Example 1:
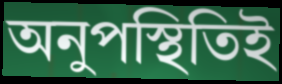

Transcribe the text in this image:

অনুপস্থিতিই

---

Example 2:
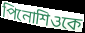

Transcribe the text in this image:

পিনোশিওকে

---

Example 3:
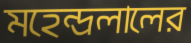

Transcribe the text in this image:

মহেন্দ্রলালের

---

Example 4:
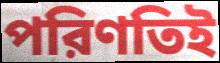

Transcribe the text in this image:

পরিণতিই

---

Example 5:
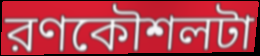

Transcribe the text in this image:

রণকৌশলটা